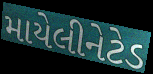
માયેલીનેટેડ